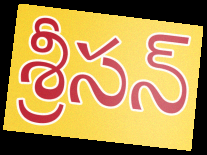
శ్రీసన్